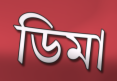
ডিমা